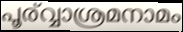
പൂര്വ്വാശ്രമനാമം